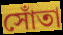
সোঁতা